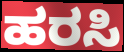
ಹರಸಿ